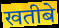
खतीबे